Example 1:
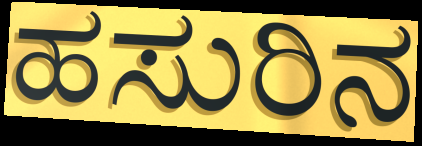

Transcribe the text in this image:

ಹಸುರಿನ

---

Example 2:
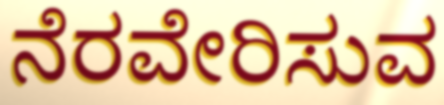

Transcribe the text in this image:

ನೆರವೇರಿಸುವ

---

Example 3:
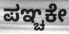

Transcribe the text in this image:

ಪಞ್ಚಕೇ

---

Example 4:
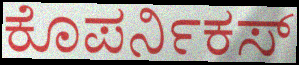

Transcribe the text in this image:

ಕೊಪರ್ನಿಕಸ್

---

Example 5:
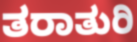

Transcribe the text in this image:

ತರಾತುರಿ